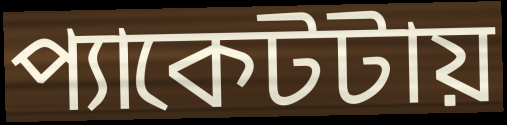
প্যাকেটটায়